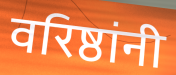
वरिष्ठांनी